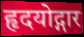
हृदयोद्गार